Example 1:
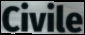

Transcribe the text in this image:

Civile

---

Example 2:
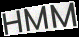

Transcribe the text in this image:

HMM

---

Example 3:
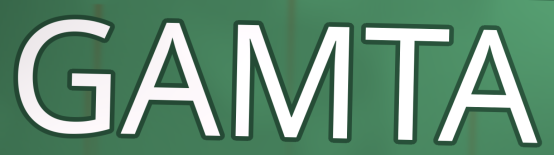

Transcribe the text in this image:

GAMTA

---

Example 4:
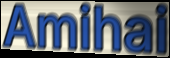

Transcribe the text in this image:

Amihai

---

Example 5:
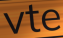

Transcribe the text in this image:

vte